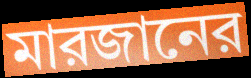
মারজানের